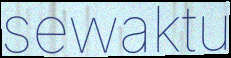
sewaktu